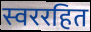
स्वररहित